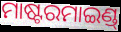
ମାଷ୍ଟରମାଇଣ୍ଡ୍